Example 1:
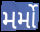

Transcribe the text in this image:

મર્મો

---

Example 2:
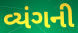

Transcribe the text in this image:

વ્યંગની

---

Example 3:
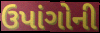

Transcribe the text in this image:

ઉપાંગોની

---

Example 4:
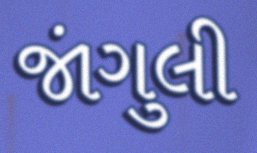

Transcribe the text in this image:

જાંગુલી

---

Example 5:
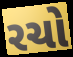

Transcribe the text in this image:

રચો